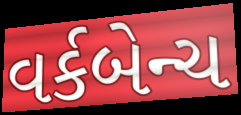
વર્કબેન્ચ